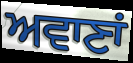
ਅਵਾਣਾਂ